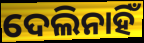
ଦେଲିନାହିଁ